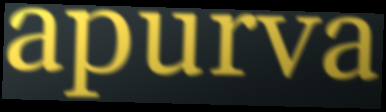
apurva